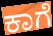
ಕಾಗೆ